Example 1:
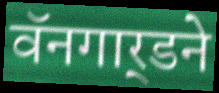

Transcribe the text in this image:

वॅनगार्डने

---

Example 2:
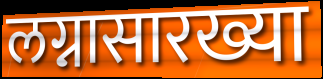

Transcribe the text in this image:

लग्नासारख्या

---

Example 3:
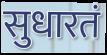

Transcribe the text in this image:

सुधारतं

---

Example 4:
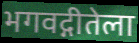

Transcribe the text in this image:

भगवद्गीतेला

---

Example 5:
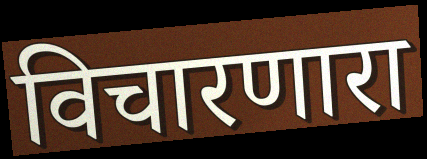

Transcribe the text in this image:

विचारणारा